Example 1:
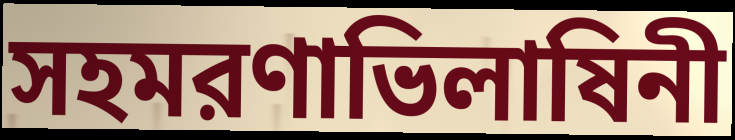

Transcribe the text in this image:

সহমরণাভিলাষিনী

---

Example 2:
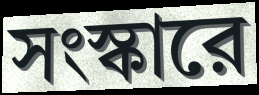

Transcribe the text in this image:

সংস্কারে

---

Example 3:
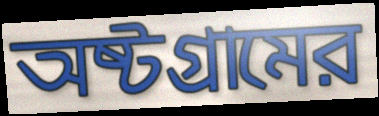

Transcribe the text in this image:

অষ্টগ্রামের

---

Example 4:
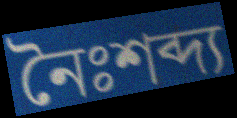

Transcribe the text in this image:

নৈঃশব্দ্য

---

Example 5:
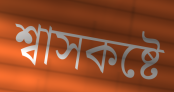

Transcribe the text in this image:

শ্বাসকষ্টে